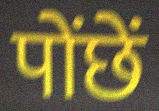
पोंछें